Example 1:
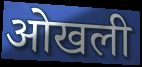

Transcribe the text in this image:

ओखली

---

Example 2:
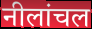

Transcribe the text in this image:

नीलांचल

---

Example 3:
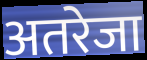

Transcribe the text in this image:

अतरेजा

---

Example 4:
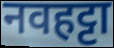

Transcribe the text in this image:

नवहट्टा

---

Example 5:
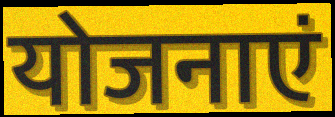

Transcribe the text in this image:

योजनाएं